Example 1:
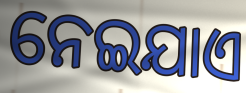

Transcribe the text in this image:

ନେଇଯାଏ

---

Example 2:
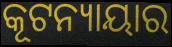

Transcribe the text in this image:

କୂଟନ୍ୟାୟାର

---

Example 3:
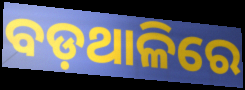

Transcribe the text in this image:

ବଡ଼ଥାଳିରେ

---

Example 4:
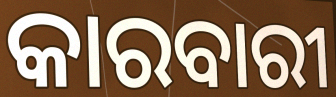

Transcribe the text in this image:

କାରବାରୀ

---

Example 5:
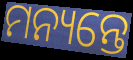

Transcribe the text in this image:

ମନ୍ୟନ୍ତେ